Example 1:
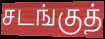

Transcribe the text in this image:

சடங்குத்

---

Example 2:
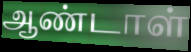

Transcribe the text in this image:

ஆண்டாள்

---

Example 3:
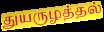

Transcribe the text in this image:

துயருழத்தல்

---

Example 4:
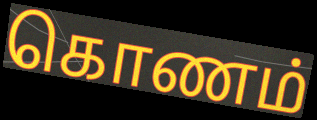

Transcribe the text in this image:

கொணம்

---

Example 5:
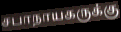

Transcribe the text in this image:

சபாநாயகருக்கு